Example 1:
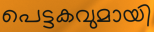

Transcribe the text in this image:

പെട്ടകവുമായി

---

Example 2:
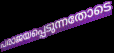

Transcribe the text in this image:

പരാജയപ്പെടുന്നതോടെ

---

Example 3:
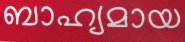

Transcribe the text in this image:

ബാഹ്യമായ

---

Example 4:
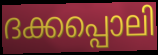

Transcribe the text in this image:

ദക്കപ്പൊലി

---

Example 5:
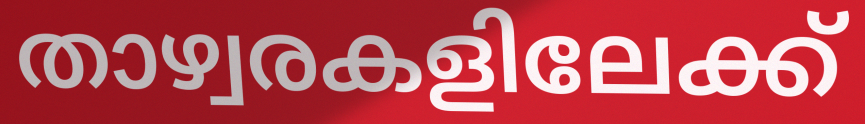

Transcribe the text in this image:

താഴ്വരകളിലേക്ക്